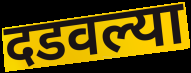
दडवल्या